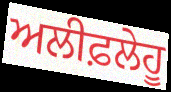
ਅਲੀਫ਼ਲੇਹੂ